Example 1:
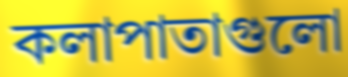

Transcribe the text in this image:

কলাপাতাগুলো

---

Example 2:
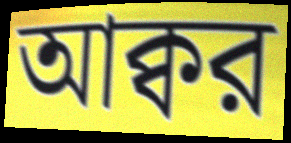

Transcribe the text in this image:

আক্বর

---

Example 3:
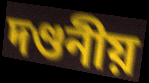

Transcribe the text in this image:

দণ্ডনীয়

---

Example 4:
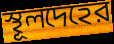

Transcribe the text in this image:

স্থূলদেহের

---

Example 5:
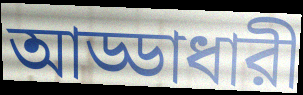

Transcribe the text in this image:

আড্ডাধারী